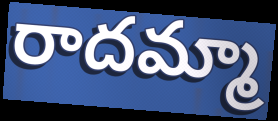
రాదమ్మా